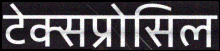
टेक्सप्रोसिल